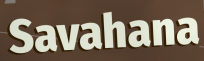
Savahana